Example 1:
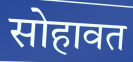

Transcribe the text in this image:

सोहावत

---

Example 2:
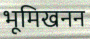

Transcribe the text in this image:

भूमिखनन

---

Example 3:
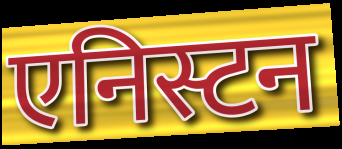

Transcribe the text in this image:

एनिस्टन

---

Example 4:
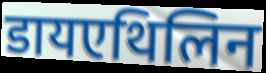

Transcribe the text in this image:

डायएथिलिन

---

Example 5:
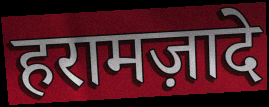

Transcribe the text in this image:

हरामज़ादे